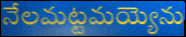
నేలమట్టమయ్యెను